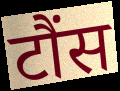
टौंस